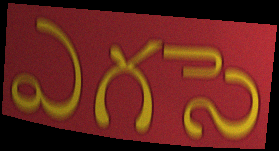
ఎగసె